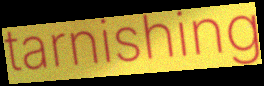
tarnishing